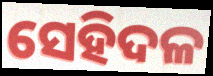
ସେହିଦଳ